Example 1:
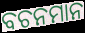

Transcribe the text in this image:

ବଚନମାନ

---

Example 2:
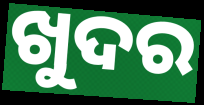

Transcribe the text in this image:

ଖୁଦର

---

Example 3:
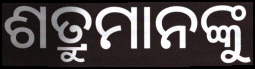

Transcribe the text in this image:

ଶତ୍ରୁମାନଙ୍କୁ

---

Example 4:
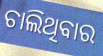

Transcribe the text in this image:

ଚାଲିଥିବାର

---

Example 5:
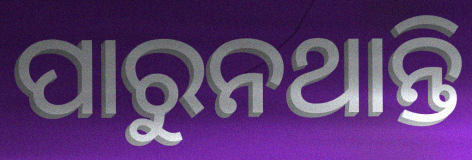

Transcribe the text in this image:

ପାରୁନଥାନ୍ତି